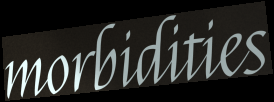
morbidities